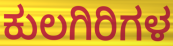
ಕುಲಗಿರಿಗಳ